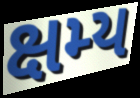
ક્ષમ્ય